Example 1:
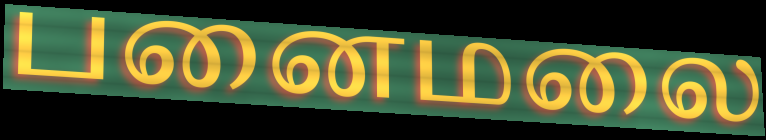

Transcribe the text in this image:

பனைமலை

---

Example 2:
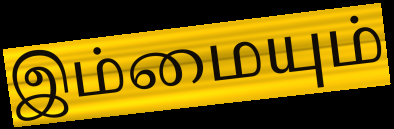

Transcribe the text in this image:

இம்மையும்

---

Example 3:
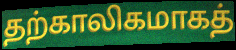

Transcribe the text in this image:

தற்காலிகமாகத்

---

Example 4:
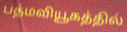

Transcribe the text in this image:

பத்மவியூகத்தில்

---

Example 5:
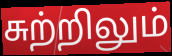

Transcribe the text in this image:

சுற்றிலும்